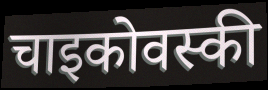
चाइकोवस्की